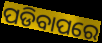
ପଡିବାପରେ